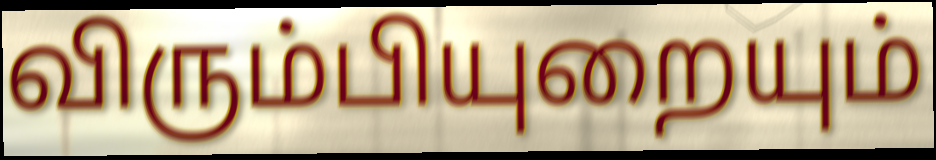
விரும்பியுறையும்